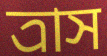
ত্রাস